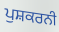
ਪੁਸ਼ਕਰਨੀ